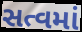
સત્વમાં